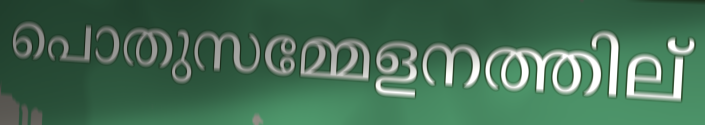
പൊതുസമ്മേളനത്തില്